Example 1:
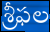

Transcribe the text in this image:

శ్రీఫల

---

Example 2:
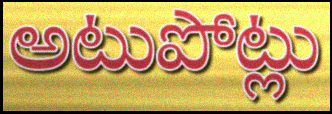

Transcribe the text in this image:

అటుపోట్లు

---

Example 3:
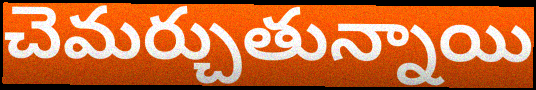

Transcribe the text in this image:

చెమర్చుతున్నాయి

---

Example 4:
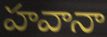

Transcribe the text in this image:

హవానా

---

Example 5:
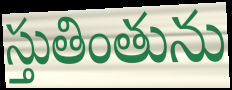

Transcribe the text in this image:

స్తుతింతును